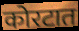
कोरटात